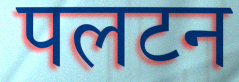
पलटन